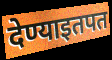
देण्याइतपत